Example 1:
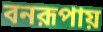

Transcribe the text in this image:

বনরূপায়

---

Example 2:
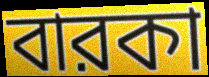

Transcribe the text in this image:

বারকা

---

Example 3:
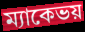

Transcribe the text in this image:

ম্যাকেভয়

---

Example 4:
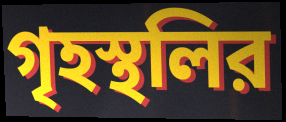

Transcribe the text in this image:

গৃহস্থলির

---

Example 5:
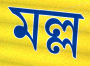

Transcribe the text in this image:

মল্ল